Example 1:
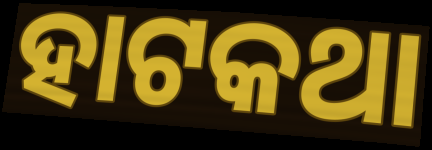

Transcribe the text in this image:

ହାଟକଥା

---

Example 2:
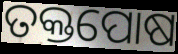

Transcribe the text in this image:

ତକ୍ତପୋଷ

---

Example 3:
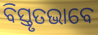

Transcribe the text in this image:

ବିସ୍ତୃତଭାବେ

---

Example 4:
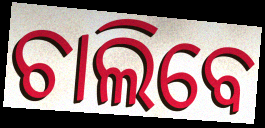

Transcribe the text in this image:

ଚାଲିବେ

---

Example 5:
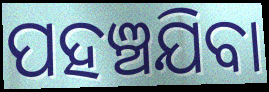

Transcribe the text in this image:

ପହଞ୍ଚଯିବା